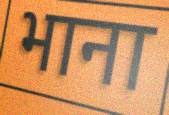
भाना